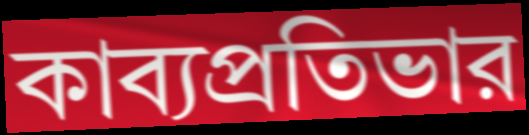
কাব্যপ্রতিভার